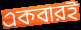
একবারই